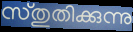
സ്തുതിക്കുന്നു